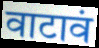
वाटावं